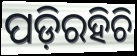
ପଡ଼ିରହିଚି